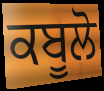
ਕਬੂਲੋ